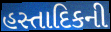
હસ્તાદિકની